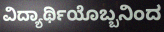
ವಿದ್ಯಾರ್ಥಿಯೊಬ್ಬನಿಂದ